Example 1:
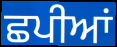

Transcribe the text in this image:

ਛਪੀਆਂ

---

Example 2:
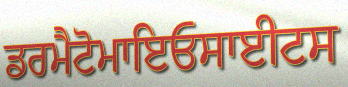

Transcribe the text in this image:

ਡਰਮੈਟੋਮਾਇਓਸਾਈਟਸ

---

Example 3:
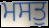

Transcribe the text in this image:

ਮਸਤੁ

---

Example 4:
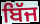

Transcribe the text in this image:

ਬਿੱਜ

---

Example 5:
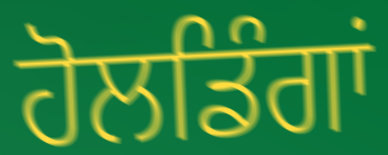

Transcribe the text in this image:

ਹੋਲਡਿੰਗਾਂ